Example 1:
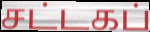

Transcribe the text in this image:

சட்டகப்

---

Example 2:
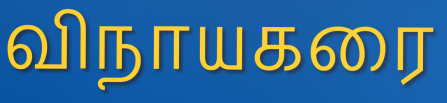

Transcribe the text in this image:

விநாயகரை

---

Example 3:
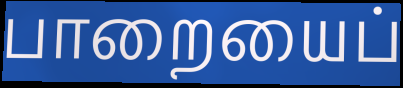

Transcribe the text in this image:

பாறையைப்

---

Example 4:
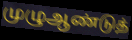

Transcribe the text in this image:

முழுஆண்டுத்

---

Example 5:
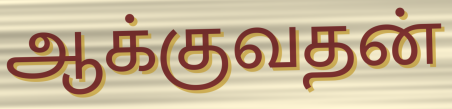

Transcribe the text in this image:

ஆக்குவதன்